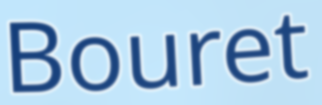
Bouret